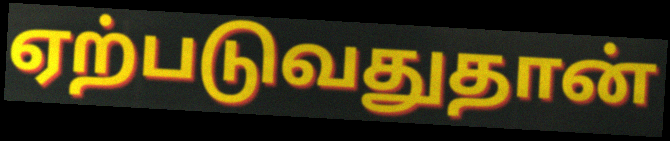
ஏற்படுவதுதான்